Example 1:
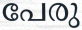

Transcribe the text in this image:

പേരു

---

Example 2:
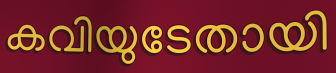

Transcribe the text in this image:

കവിയുടേതായി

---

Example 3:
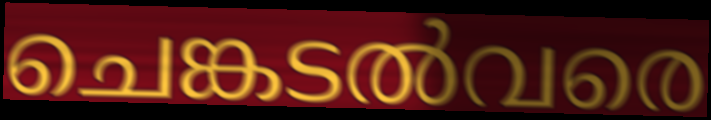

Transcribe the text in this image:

ചെങ്കടൽവരെ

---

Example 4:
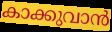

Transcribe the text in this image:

കാക്കുവാൻ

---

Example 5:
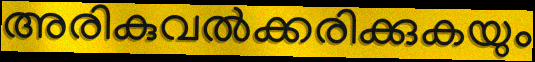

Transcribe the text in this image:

അരികുവൽക്കരിക്കുകയും